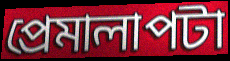
প্রেমালাপটা